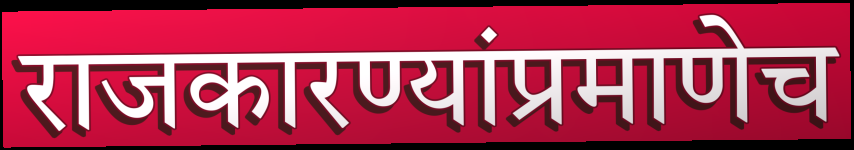
राजकारण्यांप्रमाणेच